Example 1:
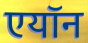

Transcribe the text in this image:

एयॉन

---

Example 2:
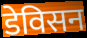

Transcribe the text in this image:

डेविसन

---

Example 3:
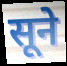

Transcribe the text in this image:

सूने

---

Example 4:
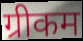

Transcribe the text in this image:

ग्रीकम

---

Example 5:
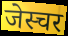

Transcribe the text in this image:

जेस्चर